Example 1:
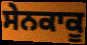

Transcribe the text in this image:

ਸੇਨਕਾਕੂ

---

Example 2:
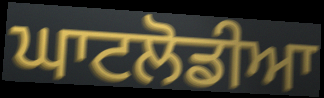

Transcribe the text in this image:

ਘਾਟਲੋਡੀਆ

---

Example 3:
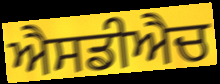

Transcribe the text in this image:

ਐਸਡੀਐਚ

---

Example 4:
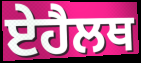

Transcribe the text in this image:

ਏਹੈਲਥ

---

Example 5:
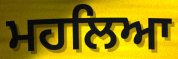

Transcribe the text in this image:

ਮਹਲਿਆ